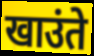
खाउंते